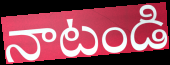
నాటండి